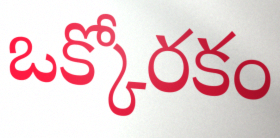
ఒక్కోరకం